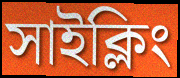
সাইক্লিং